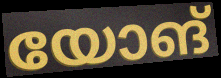
യോങ്